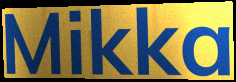
Mikka